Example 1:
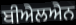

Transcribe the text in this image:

ਬੀਐਲਐਨ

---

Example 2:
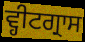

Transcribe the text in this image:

ਵ੍ਹੀਟਗ੍ਰਾਸ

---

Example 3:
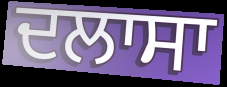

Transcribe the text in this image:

ਦਲਾਸਾ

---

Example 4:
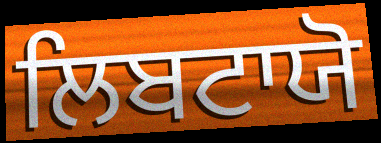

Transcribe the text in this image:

ਲਿਬਟਾਯੋ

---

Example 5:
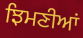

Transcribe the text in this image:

ਝਿਮਣੀਆਂ